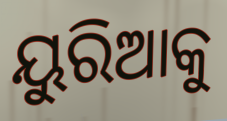
ୟୁରିଆକୁ